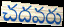
చదవరు